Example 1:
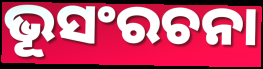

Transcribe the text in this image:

ଭୂସଂରଚନା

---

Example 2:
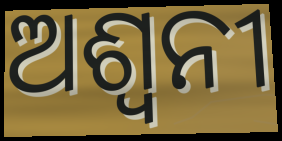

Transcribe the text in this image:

ଅଶ୍ୱନୀ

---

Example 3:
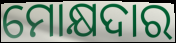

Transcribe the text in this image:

ମୋକ୍ଷଦାର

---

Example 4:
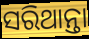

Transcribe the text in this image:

ସରିଥାନ୍ତା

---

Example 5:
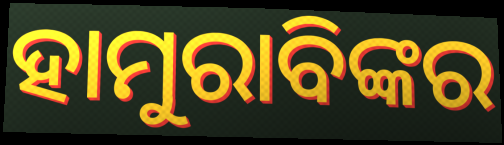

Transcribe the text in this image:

ହାମୁରାବିଙ୍କର